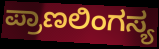
ಪ್ರಾಣಲಿಂಗಸ್ಯ